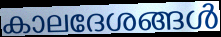
കാലദേശങ്ങൾ